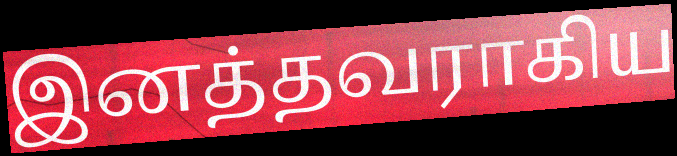
இனத்தவராகிய